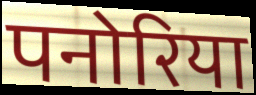
पनोरिया